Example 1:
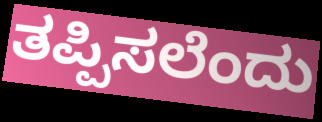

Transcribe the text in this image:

ತಪ್ಪಿಸಲೆಂದು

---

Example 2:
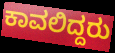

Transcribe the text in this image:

ಕಾವಲಿದ್ದರು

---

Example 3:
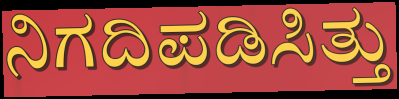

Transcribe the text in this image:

ನಿಗದಿಪಡಿಸಿತ್ತು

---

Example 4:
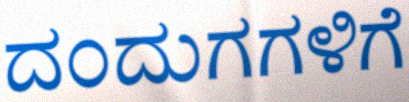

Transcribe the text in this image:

ದಂದುಗಗಳಿಗೆ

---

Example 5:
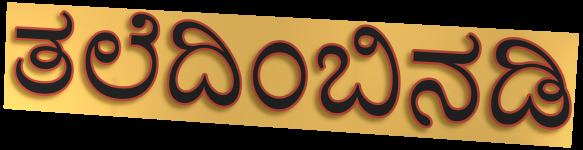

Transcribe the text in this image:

ತಲೆದಿಂಬಿನಡಿ